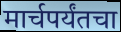
मार्चपर्यंतचा